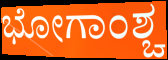
ಭೋಗಾಂಶ್ಚ